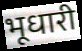
भूधारी